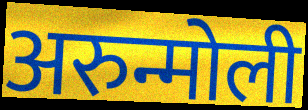
अरुन्मोली